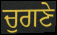
ਚੁਗਣੇ